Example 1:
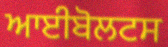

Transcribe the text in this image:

ਆਈਬੋਲਟਸ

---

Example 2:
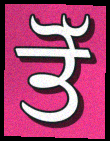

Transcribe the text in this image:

ਤੋੱ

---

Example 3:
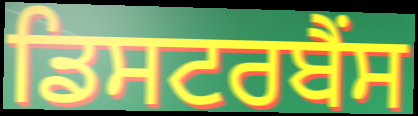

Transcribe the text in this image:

ਡਿਸਟਰਬੈਂਸ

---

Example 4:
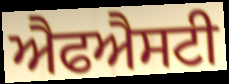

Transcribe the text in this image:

ਐਫਐਸਟੀ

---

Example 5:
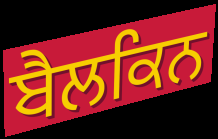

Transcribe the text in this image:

ਬੈਲਕਿਨ